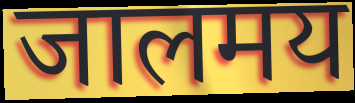
जालमय